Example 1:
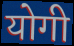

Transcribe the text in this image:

योगी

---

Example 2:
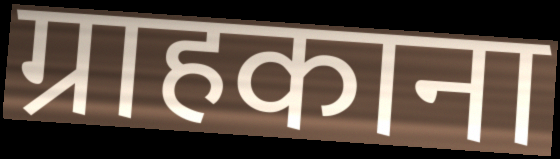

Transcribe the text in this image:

ग्राहकाना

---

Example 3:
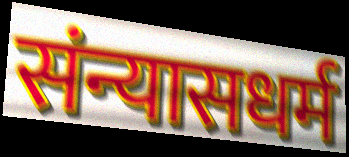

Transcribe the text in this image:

संन्यासधर्म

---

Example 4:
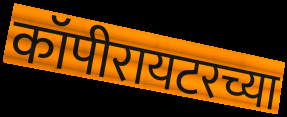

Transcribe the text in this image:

कॉपीरायटरच्या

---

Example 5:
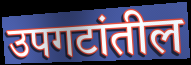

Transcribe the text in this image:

उपगटांतील